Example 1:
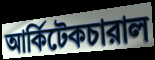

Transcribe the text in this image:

আর্কিটেকচারাল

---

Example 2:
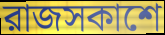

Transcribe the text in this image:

রাজসকাশে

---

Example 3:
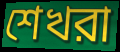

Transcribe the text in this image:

শেখরা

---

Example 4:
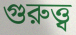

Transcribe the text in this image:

গুরুত্ত্ব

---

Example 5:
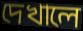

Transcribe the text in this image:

দেখালে